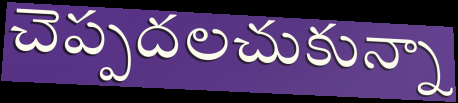
చెప్పదలచుకున్నా